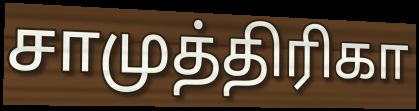
சாமுத்திரிகா